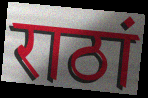
राठां